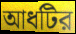
আধটির